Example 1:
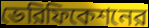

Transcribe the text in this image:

ভেরিফিকেশনের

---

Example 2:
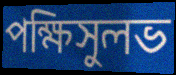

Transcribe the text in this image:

পক্ষিসুলভ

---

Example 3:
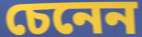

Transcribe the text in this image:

চেনেন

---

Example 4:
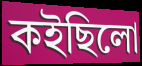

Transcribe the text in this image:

কইছিলো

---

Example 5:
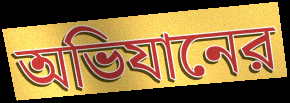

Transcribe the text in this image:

অভিযানের